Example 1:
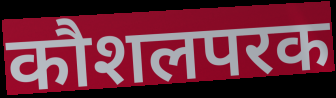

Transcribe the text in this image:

कौशलपरक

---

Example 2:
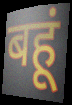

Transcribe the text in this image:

बहूं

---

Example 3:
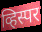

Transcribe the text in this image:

व्हिस्पर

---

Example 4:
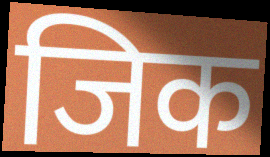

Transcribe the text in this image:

जिक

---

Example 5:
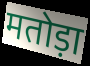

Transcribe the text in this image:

मतोड़ा